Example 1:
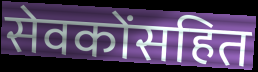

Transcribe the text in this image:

सेवकोंसहित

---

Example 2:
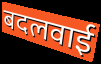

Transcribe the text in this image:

बदलवाई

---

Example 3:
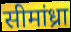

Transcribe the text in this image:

सीमांध्रा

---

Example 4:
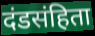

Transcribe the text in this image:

दंडसंहिता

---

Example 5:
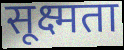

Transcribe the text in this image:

सूक्ष्मता